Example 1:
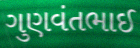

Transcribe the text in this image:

ગુણવંતભાઈ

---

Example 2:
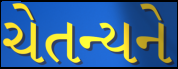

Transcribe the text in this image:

ચેતન્યને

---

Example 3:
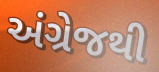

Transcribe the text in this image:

અંગ્રેજથી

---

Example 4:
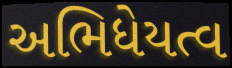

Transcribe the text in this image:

અભિધેયત્વ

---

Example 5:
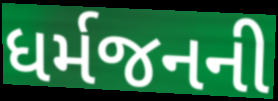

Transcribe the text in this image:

ધર્મજનની